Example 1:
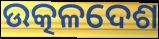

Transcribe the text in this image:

ଉତ୍କଳଦେଶ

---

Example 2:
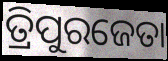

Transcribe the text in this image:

ତ୍ରିପୁରଜେତା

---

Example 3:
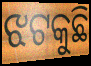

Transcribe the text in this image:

ଝଟକୁଛି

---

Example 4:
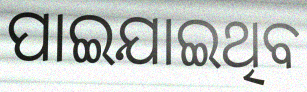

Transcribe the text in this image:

ପାଇଯାଇଥିବ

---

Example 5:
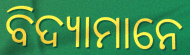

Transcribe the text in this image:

ବିଦ୍ୟାମାନେ